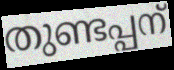
തുണ്ടപ്പന്